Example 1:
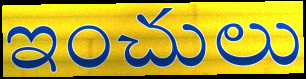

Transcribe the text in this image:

ఇంచులు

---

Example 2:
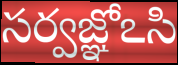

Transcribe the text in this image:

సర్వజ్ఞోఽసి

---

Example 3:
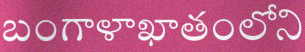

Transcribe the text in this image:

బంగాళాఖాతంలోని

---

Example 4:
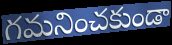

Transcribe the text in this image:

గమనించకుండా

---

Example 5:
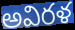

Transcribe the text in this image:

అవిరళ